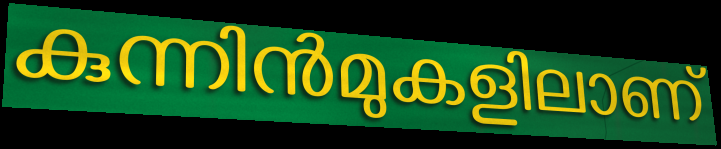
കുന്നിൻമുകളിലാണ്